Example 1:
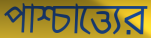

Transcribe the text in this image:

পাশ্চাত্ত্যের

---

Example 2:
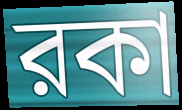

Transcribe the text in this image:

রকা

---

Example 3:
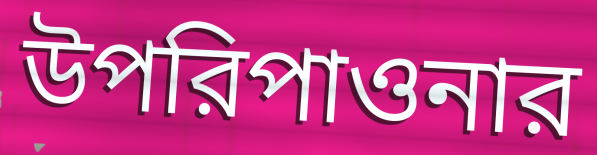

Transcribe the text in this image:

উপরিপাওনার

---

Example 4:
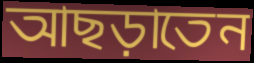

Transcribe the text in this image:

আছড়াতেন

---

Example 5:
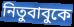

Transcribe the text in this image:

নিতুবাবুকে